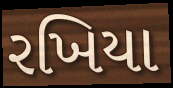
રખિયા